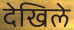
देखिले